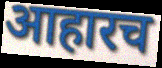
आहारच